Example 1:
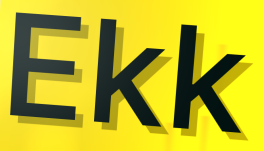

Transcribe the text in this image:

Ekk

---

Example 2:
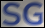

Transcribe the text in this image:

SG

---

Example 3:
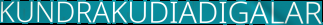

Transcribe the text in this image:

KUNDRAKUDIADIGALAR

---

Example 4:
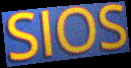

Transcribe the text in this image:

SIOS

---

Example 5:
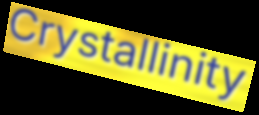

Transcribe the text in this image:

Crystallinity